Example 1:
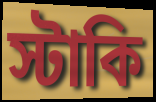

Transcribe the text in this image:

স্টাকি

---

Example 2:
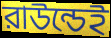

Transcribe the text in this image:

রাউন্ডেই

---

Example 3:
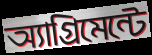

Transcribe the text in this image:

অ্যাগ্রিমেন্টে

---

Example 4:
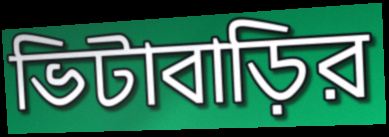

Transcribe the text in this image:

ভিটাবাড়ির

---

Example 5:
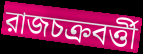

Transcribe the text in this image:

রাজচক্রবর্ত্তী